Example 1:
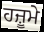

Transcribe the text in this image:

ਹਜ਼ੂਮੇ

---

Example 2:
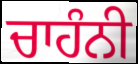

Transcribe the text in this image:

ਚਾਹੰਨੀ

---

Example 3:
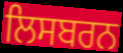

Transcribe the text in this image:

ਲਿਸਬਰਨ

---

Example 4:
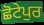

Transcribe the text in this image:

ਛੋਟੇਪੁਰ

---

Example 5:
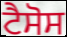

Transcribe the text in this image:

ਟੈਸੋਸ